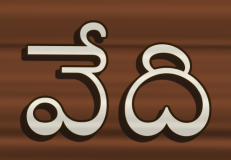
వేది